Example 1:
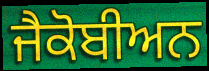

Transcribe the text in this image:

ਜੈਕੋਬੀਅਨ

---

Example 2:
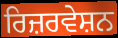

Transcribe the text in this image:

ਰਿਜ਼ਰਵੇਸ਼ਨ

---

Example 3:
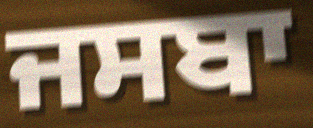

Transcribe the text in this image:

ਜਸਬਾ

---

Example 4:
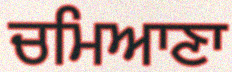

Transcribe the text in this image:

ਚਮਿਆਣਾ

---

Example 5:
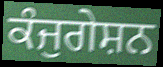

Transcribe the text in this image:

ਕੰਜੁਗੇਸ਼ਨ